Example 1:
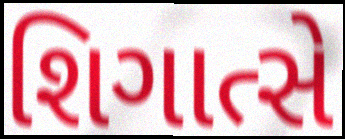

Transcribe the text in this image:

શિગાત્સે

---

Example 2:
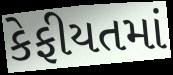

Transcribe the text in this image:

કેફીયતમાં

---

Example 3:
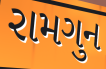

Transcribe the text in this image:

રામગુન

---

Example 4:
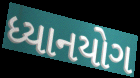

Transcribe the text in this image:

ધ્યાનયોગ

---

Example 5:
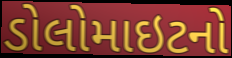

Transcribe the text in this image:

ડોલોમાઇટનો